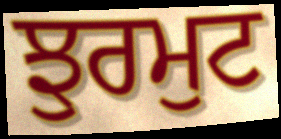
ਝੁਰਮੁਟ